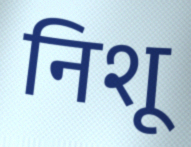
निशू